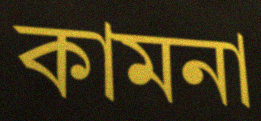
কামনা